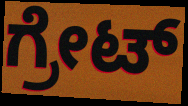
ಗ್ರೇಟ್